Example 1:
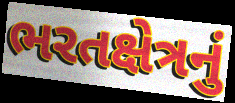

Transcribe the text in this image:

ભરતક્ષેત્રનું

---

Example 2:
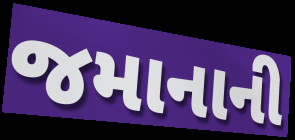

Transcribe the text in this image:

જમાનાની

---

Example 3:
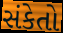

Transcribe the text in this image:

સંકેતો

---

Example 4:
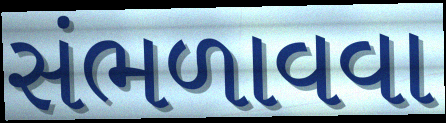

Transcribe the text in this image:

સંભળાવવા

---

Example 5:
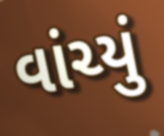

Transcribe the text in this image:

વાંચ્યું